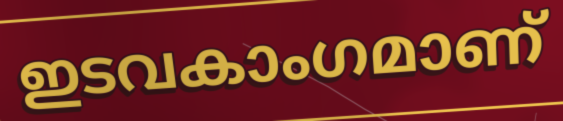
ഇടവകാംഗമാണ്